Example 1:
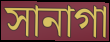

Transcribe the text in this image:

সানাগা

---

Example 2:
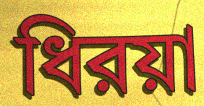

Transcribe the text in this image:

ধিরয়া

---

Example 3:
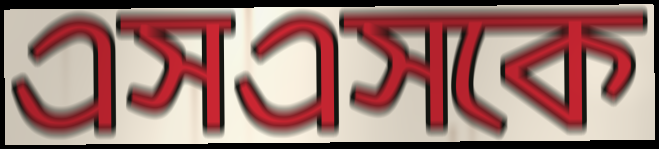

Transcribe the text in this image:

এসএসকে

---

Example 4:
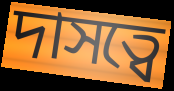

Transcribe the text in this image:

দাসত্বে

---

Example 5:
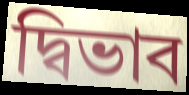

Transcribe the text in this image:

দ্বিভাব